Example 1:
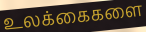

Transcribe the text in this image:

உலக்கைகளை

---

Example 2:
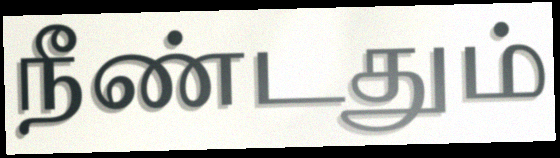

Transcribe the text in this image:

நீண்டதும்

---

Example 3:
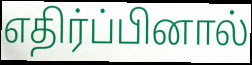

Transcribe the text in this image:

எதிர்ப்பினால்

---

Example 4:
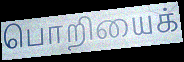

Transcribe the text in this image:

பொறியைக்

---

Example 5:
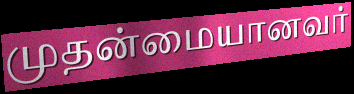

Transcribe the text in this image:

முதன்மையானவர்